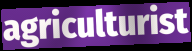
agriculturist